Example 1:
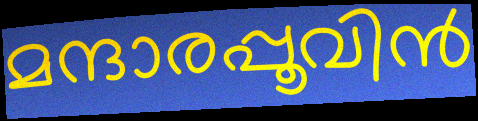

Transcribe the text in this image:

മന്ദാരപ്പൂവിൻ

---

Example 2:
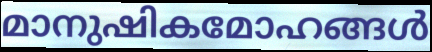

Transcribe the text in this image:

മാനുഷികമോഹങ്ങൾ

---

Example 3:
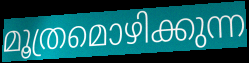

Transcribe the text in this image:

മൂത്രമൊഴിക്കുന്ന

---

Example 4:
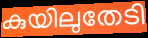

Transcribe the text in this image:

കുയിലുതേടി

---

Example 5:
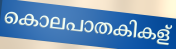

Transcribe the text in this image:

കൊലപാതകികള്